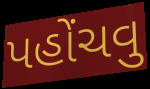
પહોંચવુ